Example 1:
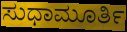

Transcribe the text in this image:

ಸುಧಾಮೂರ್ತಿ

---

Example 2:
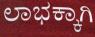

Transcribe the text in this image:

ಲಾಭಕ್ಕಾಗಿ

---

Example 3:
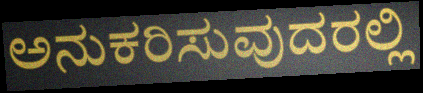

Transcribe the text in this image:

ಅನುಕರಿಸುವುದರಲ್ಲಿ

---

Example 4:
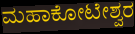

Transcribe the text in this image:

ಮಹಾಕೋಟೇಶ್ವರ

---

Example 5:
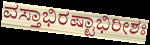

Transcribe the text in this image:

ವಸ್ತಾಭಿರಷ್ಟಾಭಿರೀಶಃ